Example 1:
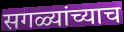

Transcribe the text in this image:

सगळ्यांच्याच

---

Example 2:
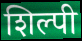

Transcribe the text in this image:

शिल्पी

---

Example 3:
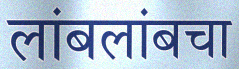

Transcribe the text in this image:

लांबलांबचा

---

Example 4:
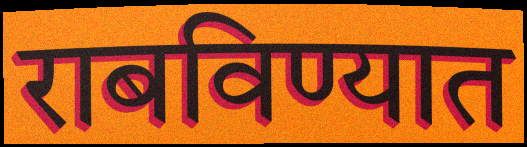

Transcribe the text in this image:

राबविण्‍यात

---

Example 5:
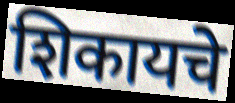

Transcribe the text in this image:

शिकायचे